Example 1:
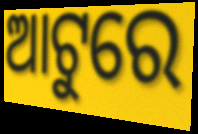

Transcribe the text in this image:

ଆଟୁରେ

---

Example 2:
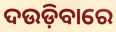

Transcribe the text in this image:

ଦଉଡ଼ିବାରେ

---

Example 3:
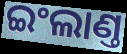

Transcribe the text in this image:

ଇଂଲାଣ୍ତ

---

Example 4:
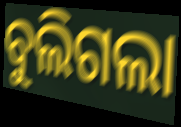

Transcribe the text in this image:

ବୁଲିଗଲା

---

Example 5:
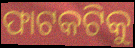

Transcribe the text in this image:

ଫାଟକଟିକୁ